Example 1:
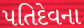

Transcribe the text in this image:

પતિદેવના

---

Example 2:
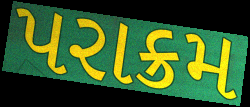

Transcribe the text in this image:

પરાક્રમ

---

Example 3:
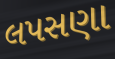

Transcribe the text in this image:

લપસણા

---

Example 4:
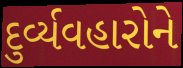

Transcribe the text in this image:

દુર્વ્યવહારોને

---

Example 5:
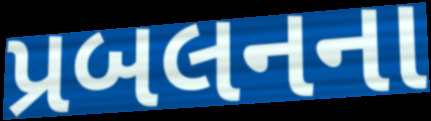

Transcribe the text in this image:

પ્રબલનના